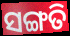
ସଙ୍ଗତି